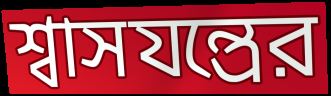
শ্বাসযন্ত্রের